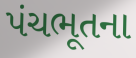
પંચભૂતના